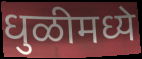
धुळीमध्ये